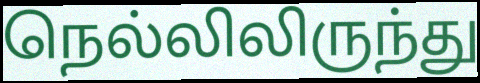
நெல்லிலிருந்து